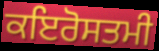
ਕਇਰੋਸਤਮੀ